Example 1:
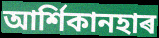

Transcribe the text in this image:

আৰ্শিকানহাৰ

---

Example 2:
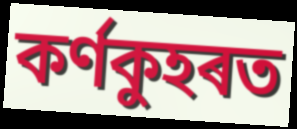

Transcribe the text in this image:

কৰ্ণকুহৰত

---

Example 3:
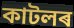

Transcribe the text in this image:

কাটলৰ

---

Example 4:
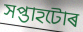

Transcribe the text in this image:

সপ্তাহটোৰ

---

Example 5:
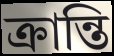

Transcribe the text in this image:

ক্ৰান্তি